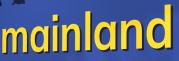
mainland